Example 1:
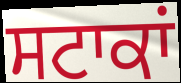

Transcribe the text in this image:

ਸਟਾਕਾਂ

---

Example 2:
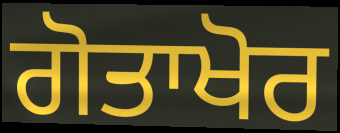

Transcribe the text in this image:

ਗੋਤਾਖੋਰ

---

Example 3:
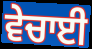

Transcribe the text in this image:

ਵੇਚਾਈ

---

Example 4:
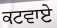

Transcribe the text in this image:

ਕਟਵਾਏ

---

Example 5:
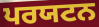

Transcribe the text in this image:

ਪਰਯਟਨ